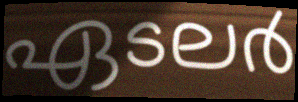
ഏടലർ